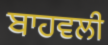
ਬਾਹਵਲੀ